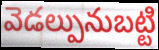
వెడల్పునుబట్టి